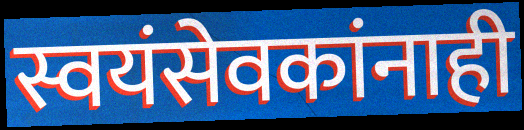
स्वयंसेवकांनाही